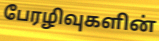
பேரழிவுகளின்